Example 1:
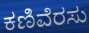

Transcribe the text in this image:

ಕಣಿವೆರಸು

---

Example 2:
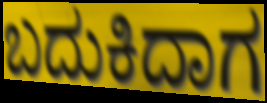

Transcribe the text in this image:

ಬದುಕಿದಾಗ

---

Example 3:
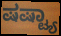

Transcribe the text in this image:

ಷಷ್ಟ್ಯಾ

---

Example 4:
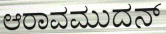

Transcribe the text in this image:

ಆರಾವಮುದನ್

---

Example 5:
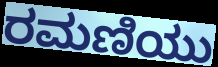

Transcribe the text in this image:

ರಮಣಿಯು